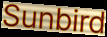
Sunbird